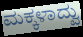
ಮಕ್ಕಳಾದ್ವು